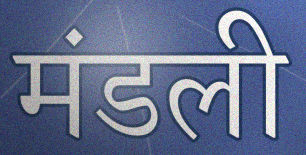
मंडली